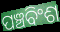
ପଞ୍ଚବିଂଶ